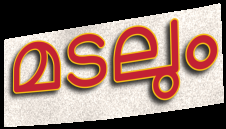
മടലും